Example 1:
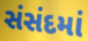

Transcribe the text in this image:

સંસંદમાં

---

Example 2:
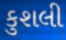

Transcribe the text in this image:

કુશલી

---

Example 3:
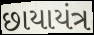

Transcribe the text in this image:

છાયાયંત્ર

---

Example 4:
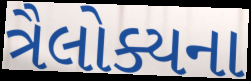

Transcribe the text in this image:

ત્રૈલોક્યના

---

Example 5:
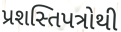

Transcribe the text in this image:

પ્રશસ્તિપત્રોથી